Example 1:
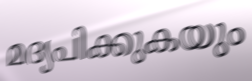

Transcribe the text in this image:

മദ്യപിക്കുകയും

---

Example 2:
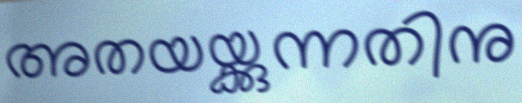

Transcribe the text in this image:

അതയയ്ക്കുന്നതിനു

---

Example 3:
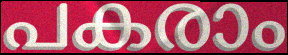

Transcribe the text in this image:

പകരാം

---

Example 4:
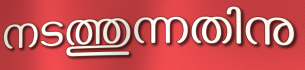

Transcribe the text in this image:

നടത്തുന്നതിനു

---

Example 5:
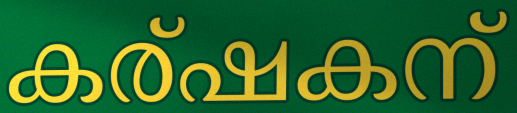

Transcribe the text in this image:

കര്ഷകന്